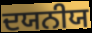
ਦਯਨੀਯ